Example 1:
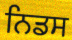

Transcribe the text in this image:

ਨਿਡਸ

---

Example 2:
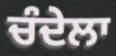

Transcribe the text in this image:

ਚੰਦੇਲਾ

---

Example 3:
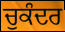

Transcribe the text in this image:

ਚੁਕੰਦਰ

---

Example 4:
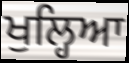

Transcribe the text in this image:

ਖੁਲ੍ਹਿਆ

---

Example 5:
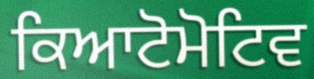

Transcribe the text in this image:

ਕਿਆਟੋਮੋਟਿਵ